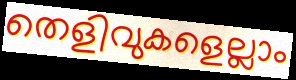
തെളിവുകളെല്ലാം